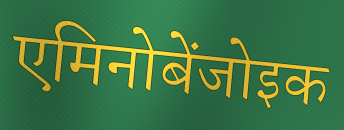
एमिनोबेंजोइक